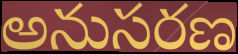
అనుసరణ